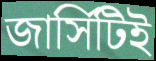
জার্সিটিই